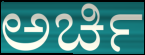
ಅರ್ಚಿ